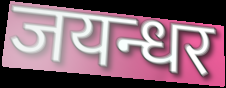
जयन्धर